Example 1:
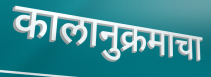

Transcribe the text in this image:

कालानुक्रमाचा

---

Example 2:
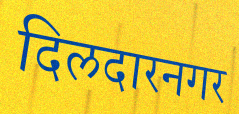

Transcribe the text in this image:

दिलदारनगर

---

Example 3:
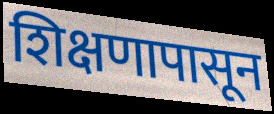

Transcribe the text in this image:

शिक्षणापासून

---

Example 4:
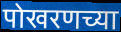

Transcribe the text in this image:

पोखरणच्या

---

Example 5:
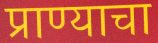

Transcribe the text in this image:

प्राण्याचा